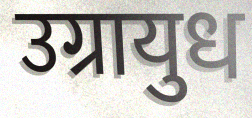
उग्रायुध